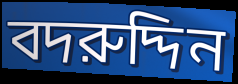
বদরুদ্দিন